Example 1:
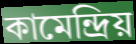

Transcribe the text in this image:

কামেন্দ্রিয়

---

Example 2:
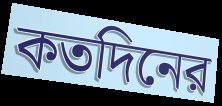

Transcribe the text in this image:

কতদিনের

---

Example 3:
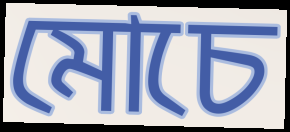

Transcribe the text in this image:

মোচে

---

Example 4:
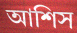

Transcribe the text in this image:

আশিস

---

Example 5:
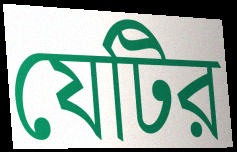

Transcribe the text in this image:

যেটির